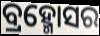
ବ୍ରହ୍ମୋସର